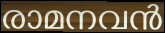
രാമനവൻ